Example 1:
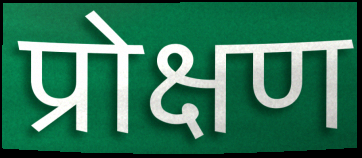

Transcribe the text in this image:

प्रोक्षण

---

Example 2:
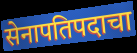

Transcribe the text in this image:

सेनापतिपदाचा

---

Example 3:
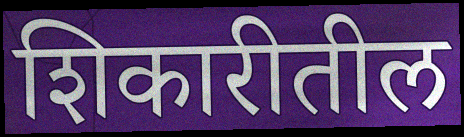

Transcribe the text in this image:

शिकारीतील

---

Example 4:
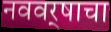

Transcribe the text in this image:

नववर्षाचा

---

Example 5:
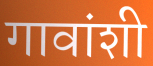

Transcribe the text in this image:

गावांशी